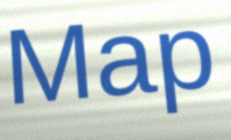
Map